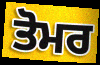
ਤੋਮਰ